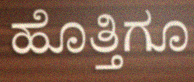
ಹೊತ್ತಿಗೂ